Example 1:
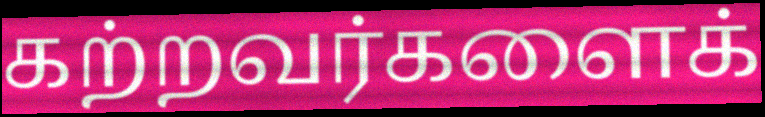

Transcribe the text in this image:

கற்றவர்களைக்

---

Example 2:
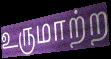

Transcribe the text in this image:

உருமாற்ற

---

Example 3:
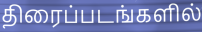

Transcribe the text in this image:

திரைப்படங்களில்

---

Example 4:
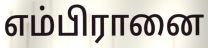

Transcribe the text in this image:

எம்பிரானை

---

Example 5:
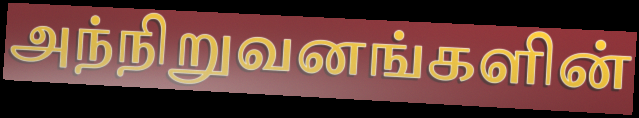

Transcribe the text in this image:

அந்நிறுவனங்களின்